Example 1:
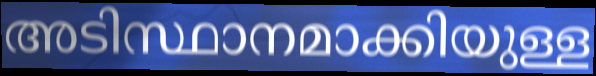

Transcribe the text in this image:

അടിസ്ഥാനമാക്കിയുള്ള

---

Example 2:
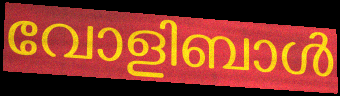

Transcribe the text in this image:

വോളിബാൾ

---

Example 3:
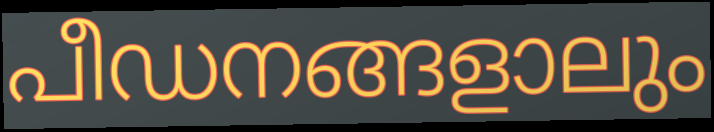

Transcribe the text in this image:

പീഡനങ്ങളാലും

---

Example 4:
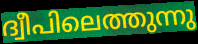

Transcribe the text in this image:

ദ്വീപിലെത്തുന്നു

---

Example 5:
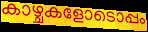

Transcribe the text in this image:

കാഴ്ചകളോടൊപ്പം